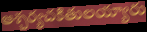
ఆశ్చర్యచకితులయ్యారు